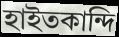
হাইতকান্দি